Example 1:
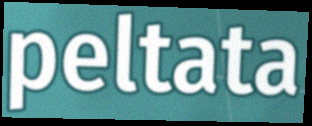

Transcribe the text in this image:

peltata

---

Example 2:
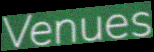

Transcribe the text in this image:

Venues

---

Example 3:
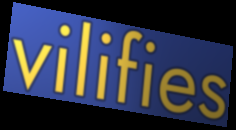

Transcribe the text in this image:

vilifies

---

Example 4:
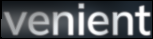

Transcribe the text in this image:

venient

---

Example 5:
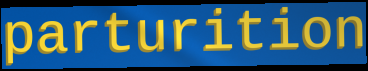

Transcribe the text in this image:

parturition